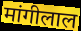
मांगीलाल